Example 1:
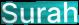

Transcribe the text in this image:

Surah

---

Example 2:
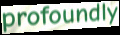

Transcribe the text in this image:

profoundly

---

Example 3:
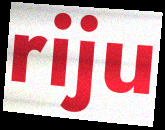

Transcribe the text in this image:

riju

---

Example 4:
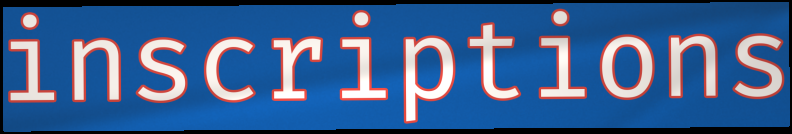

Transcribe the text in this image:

inscriptions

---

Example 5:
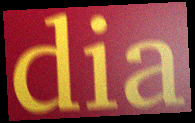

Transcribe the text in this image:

dia